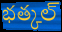
భత్కల్